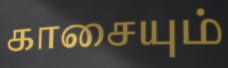
காசையும்